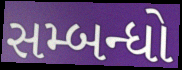
સમ્બન્ધો